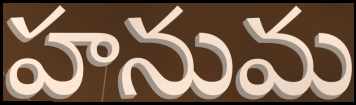
హనుమ